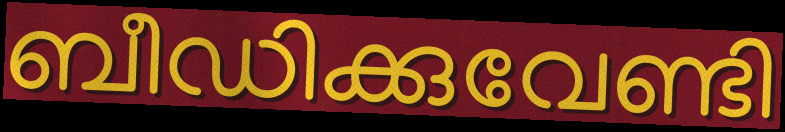
ബീഡിക്കുവേണ്ടി